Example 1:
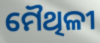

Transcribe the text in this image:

ମୈଥିଳୀ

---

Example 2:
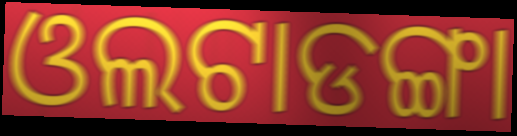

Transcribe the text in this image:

ଓଲଟାଡଙ୍ଗା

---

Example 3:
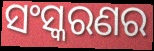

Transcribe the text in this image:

ସଂସ୍କରଣର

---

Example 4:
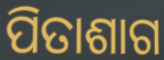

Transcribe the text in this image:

ପିତାଶାଗ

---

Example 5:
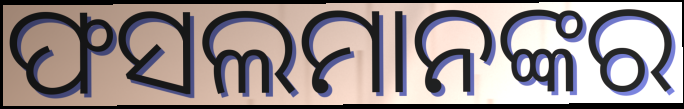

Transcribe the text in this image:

ଫସଲମାନଙ୍କର